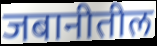
जबानीतील